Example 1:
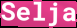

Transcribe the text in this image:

Selja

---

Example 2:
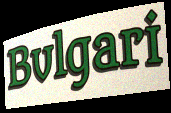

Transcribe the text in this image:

Bulgari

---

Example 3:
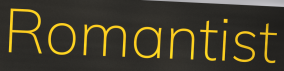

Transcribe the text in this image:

Romantist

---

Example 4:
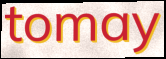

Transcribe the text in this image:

tomay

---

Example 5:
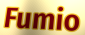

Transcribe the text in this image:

Fumio